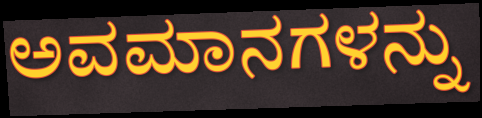
ಅವಮಾನಗಳನ್ನು